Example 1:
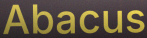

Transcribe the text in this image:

Abacus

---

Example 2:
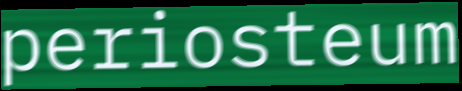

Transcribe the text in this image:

periosteum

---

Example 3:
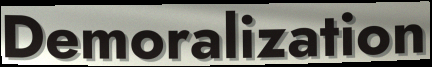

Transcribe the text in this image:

Demoralization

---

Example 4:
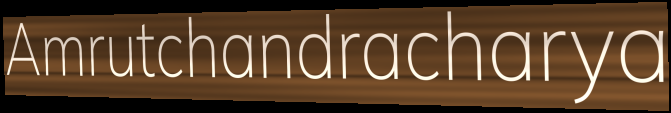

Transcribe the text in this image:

Amrutchandracharya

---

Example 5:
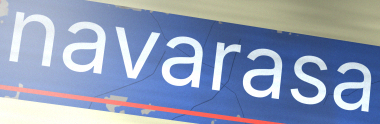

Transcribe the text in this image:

navarasa